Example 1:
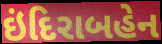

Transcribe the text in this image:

ઇંદિરાબહેન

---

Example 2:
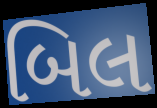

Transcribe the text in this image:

બિલ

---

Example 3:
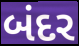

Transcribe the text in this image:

બંદર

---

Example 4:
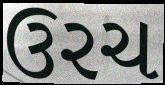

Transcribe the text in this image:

ઉરચ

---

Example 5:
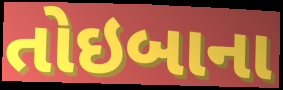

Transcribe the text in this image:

તોઇબાના